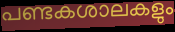
പണ്ടകശാലകളും